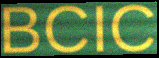
BCIC